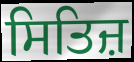
ਸਿਤਿਜ਼